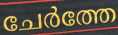
ചേർത്തേ